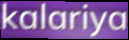
kalariya